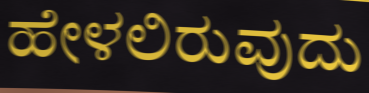
ಹೇಳಲಿರುವುದು